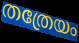
തത്രേയം